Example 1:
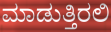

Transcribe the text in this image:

ಮಾಡುತ್ತಿರಲಿ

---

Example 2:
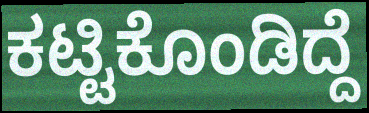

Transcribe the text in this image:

ಕಟ್ಟಿಕೊಂಡಿದ್ದೆ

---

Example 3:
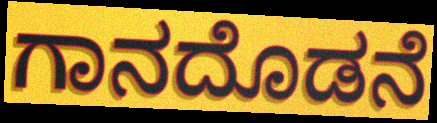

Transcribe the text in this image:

ಗಾನದೊಡನೆ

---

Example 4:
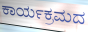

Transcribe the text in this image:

ಕಾರ್ಯಕ್ರಮದ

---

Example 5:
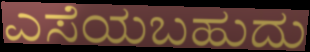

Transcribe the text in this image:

ಎಸೆಯಬಹುದು